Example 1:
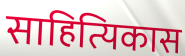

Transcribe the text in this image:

साहित्यिकास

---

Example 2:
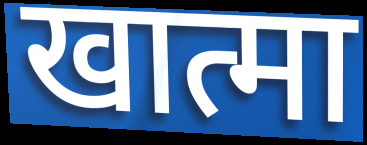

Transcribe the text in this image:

खात्मा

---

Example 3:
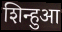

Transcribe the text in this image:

शिन्हुआ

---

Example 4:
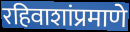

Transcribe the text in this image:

रहिवाशांप्रमाणे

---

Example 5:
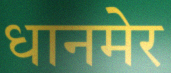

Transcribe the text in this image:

धानमेर